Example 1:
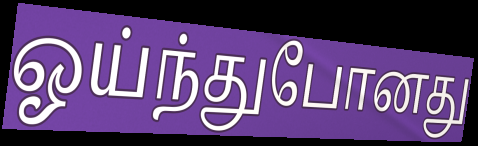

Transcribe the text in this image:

ஓய்ந்துபோனது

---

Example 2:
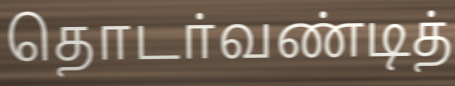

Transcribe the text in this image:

தொடர்வண்டித்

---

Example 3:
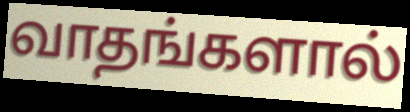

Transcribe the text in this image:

வாதங்களால்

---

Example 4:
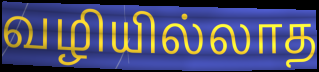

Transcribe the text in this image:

வழியில்லாத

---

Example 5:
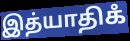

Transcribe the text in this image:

இத்யாதிகஂ